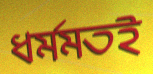
ধর্মমতই